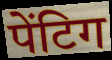
पेंटिग